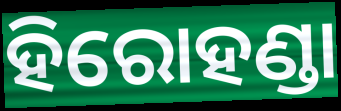
ହିରୋହଣ୍ଡା